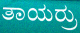
ತಾಯರ್ರು